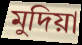
মুদিয়া